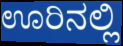
ಊರಿನಲ್ಲಿ